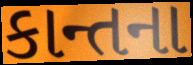
કાન્તના